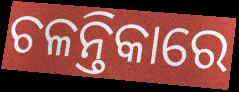
ଚଳନ୍ତିକାରେ